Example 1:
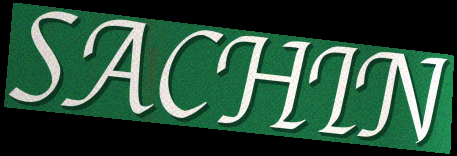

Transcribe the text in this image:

SACHIN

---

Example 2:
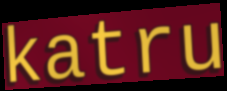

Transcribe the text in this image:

katru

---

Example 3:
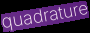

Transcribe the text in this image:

quadrature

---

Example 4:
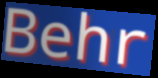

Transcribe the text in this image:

Behr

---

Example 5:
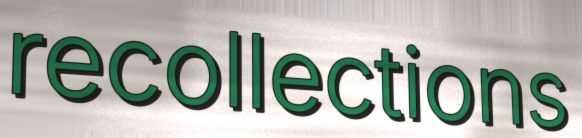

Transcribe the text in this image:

recollections